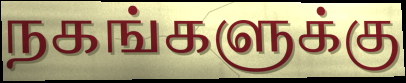
நகங்களுக்கு